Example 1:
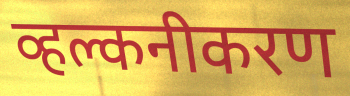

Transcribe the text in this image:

व्हल्कनीकरण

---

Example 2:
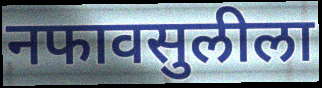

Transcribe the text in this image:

नफावसुलीला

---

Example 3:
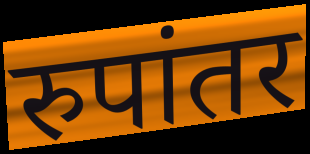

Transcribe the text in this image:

रुपांतर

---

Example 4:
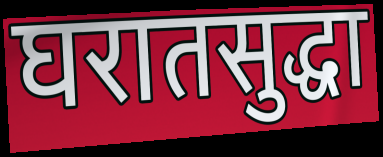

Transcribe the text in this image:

घरातसुद्धा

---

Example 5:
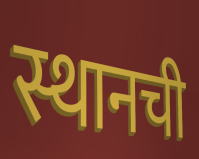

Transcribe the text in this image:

स्थानची